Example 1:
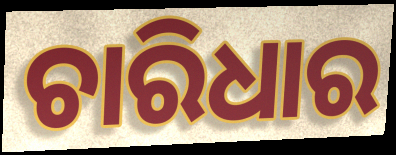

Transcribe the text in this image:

ଚାରିଧାର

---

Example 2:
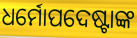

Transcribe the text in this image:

ଧର୍ମୋପଦେଷ୍ଟାଙ୍କ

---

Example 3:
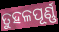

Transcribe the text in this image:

ତୁହଳପୂର୍ଣ୍ଣ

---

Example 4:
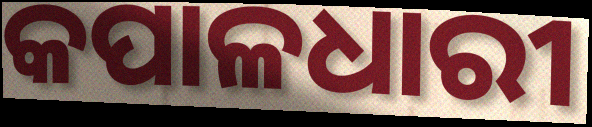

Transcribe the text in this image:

କପାଳଧାରୀ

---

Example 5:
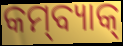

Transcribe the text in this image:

କମ୍‌ବ୍ୟାକ୍